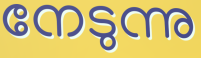
നേടുന്നു